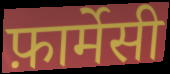
फ़ार्मेसी